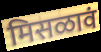
मिसळावं